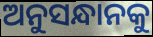
ଅନୁସନ୍ଧାନକୁ